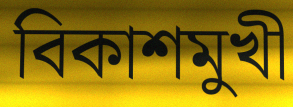
বিকাশমুখী